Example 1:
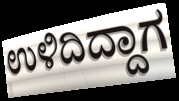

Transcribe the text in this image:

ಉಳಿದಿದ್ದಾಗ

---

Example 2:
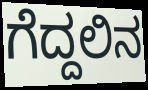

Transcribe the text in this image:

ಗೆದ್ದಲಿನ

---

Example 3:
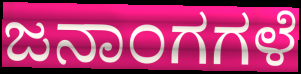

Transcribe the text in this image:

ಜನಾಂಗಗಳೆ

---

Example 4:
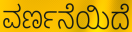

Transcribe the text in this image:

ವರ್ಣನೆಯಿದೆ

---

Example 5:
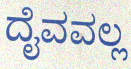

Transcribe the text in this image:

ದೈವವಲ್ಲ